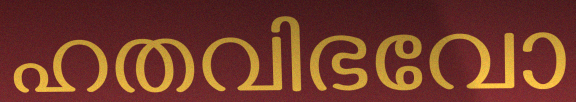
ഹതവിഭവോ